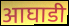
आघाडी